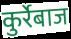
कुर्रेबाज